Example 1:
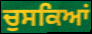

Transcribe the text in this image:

ਚੁਸਕਿਆਂ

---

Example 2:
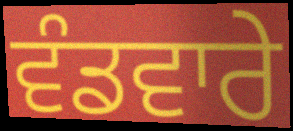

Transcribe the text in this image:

ਵੰਡਵਾਰੇ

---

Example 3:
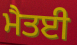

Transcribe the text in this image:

ਮੈਤਈ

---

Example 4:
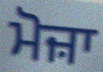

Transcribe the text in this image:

ਮੋਜ਼ਾ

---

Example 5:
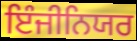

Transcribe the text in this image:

ਇੰਜੀਨਿਯਰ